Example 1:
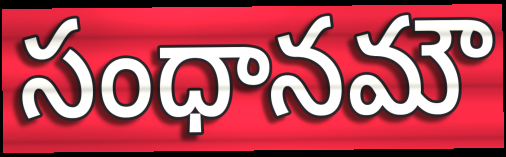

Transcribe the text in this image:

సంధానమౌ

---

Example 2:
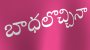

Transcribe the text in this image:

బాధలొచ్చినా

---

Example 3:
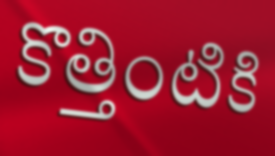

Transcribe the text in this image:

కొత్తింటికి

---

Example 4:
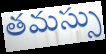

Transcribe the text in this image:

తమస్సు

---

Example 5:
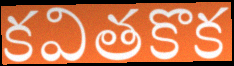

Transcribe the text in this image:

కవితకొక